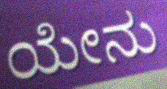
ಯೇನು